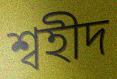
শ্বহীদ